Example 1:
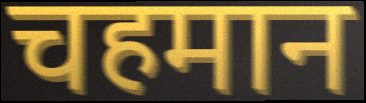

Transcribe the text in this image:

चहमान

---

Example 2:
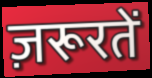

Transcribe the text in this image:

ज़रूरतें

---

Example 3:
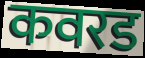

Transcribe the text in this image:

कवरड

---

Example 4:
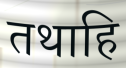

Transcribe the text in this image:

तथाहि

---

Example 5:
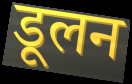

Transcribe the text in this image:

डूलन